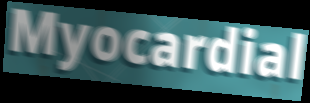
Myocardial